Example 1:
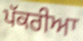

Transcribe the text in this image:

ਪੱਕਰੀਆ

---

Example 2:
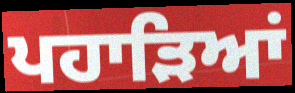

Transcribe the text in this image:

ਪਹਾੜਿਆਂ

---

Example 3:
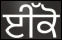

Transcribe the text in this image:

ਈੱਕੋ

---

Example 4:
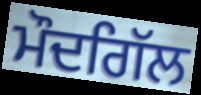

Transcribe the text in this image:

ਮੌਦਗਿੱਲ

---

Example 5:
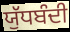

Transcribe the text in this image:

ਯੁੱਧਬੰਦੀ